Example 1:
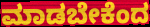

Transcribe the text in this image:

ಮಾಡಬೇಕೆಂದ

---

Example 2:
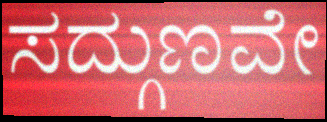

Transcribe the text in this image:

ಸದ್ಗುಣವೇ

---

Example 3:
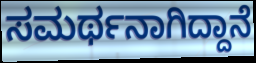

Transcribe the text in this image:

ಸಮರ್ಥನಾಗಿದ್ದಾನೆ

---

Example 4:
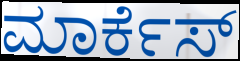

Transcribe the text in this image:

ಮಾರ್ಕೆಸ್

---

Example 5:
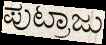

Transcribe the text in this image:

ಪುಟ್ರಾಜು